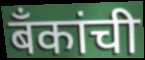
बँकांची